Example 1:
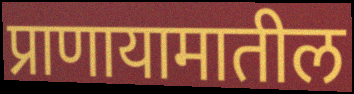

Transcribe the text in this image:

प्राणायामातील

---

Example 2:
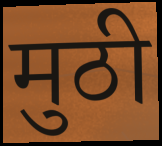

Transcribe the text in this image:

मुठी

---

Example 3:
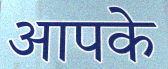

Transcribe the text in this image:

आपके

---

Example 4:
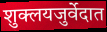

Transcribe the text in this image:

शुक्लयजुर्वेदात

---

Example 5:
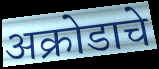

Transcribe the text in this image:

अक्रोडाचे